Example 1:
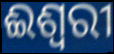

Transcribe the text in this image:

ଈଶ୍ଵରୀ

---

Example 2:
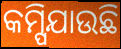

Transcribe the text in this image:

କମ୍ପିଯାଉଛି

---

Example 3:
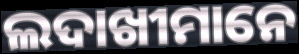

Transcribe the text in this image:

ଲଦାଖୀମାନେ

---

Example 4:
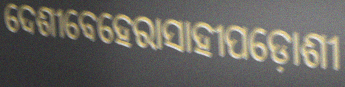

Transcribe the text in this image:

ଦେଶୀବେହେରାସାହୀପଡ଼ୋଶୀ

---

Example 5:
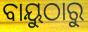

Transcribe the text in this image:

ବାୟୁଠାରୁ